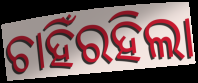
ଚାହିଁରହିଲା